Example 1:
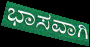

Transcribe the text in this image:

ಭಾಸವಾಗಿ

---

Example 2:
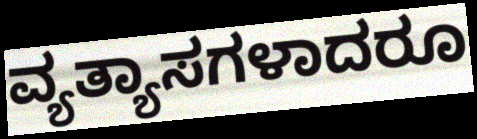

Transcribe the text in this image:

ವ್ಯತ್ಯಾಸಗಳಾದರೂ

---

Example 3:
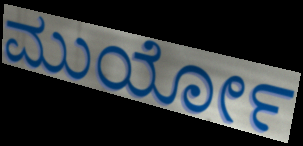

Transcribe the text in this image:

ಮುರ್ಯೋ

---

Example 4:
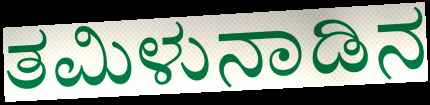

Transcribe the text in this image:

ತಮಿಳುನಾಡಿನ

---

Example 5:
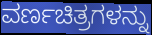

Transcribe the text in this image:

ವರ್ಣಚಿತ್ರಗಳನ್ನು